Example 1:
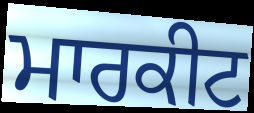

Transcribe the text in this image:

ਮਾਰਕੀਟ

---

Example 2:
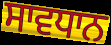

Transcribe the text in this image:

ਸਾਵਧਾਨ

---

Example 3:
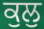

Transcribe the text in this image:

ਕੁਲੁ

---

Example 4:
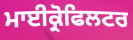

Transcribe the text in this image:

ਮਾਈਕ੍ਰੋਫਿਲਟਰ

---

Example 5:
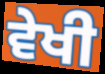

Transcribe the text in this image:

ਵੇਖੀ